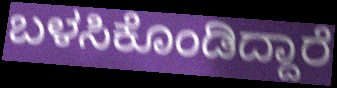
ಬಳಸಿಕೊಂಡಿದ್ದಾರೆ